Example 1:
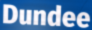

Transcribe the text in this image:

Dundee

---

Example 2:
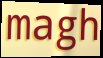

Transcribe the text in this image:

magh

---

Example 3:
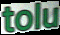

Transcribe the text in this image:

tolu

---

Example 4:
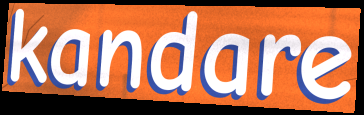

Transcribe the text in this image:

kandare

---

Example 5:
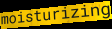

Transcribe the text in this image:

moisturizing